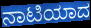
ನಾಟಿಯಾದ